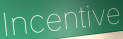
Incentive